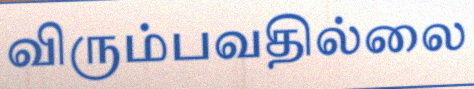
விரும்பவதில்லை